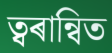
ত্বৰান্বিত